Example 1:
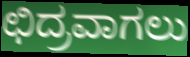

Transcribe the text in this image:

ಛಿದ್ರವಾಗಲು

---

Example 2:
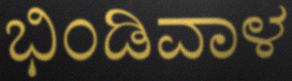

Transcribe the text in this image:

ಭಿಂಡಿವಾಳ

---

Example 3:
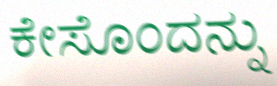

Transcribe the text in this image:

ಕೇಸೊಂದನ್ನು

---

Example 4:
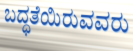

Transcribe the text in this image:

ಬದ್ಧತೆಯಿರುವವರು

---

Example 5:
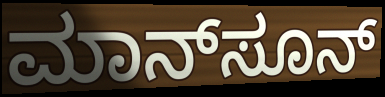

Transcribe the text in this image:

ಮಾನ್‌ಸೂನ್